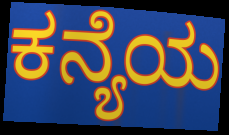
ಕನ್ಯೆಯ